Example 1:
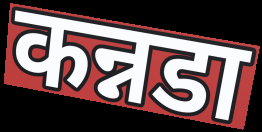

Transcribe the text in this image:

कन्नडा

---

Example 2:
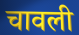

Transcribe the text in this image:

चावली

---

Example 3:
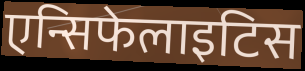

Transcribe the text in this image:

एन्सिफेलाइटिस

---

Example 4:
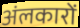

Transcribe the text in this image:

अंलकारों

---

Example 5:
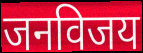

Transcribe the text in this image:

जनविजय